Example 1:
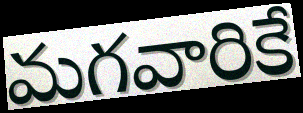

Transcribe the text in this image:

మగవారికే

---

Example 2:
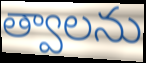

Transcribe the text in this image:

త్వాలను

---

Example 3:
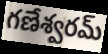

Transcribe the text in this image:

గణేశ్వరమ్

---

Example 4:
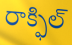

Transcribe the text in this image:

రాక్ఫిల్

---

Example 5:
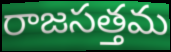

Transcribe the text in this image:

రాజసత్తమ